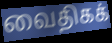
வைதிகக்